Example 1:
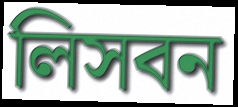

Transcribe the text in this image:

লিসবন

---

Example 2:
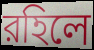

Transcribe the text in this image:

রহিলে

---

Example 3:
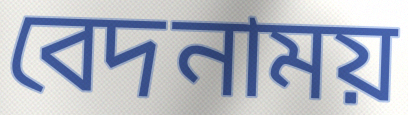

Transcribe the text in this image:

বেদনাময়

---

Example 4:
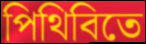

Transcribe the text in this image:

পিথিবিতে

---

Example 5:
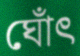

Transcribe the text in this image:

ঘোঁৎ